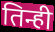
तिन्ही